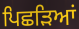
ਪਿਛੜਿਆਂ